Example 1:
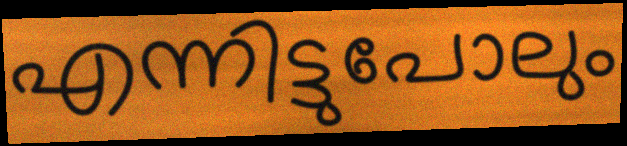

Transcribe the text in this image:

എന്നിട്ടുപോലും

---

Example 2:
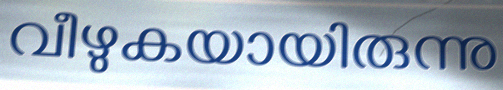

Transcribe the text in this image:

വീഴുകയായിരുന്നു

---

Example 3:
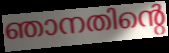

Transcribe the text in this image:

ഞാനതിന്റെ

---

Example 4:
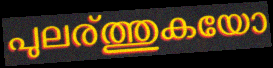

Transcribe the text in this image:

പുലര്ത്തുകയോ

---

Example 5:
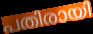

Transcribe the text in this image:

പതിരായി